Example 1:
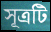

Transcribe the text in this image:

সূত্রটি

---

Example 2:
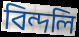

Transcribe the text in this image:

বিন্দলি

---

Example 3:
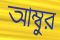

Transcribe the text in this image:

আম্বুর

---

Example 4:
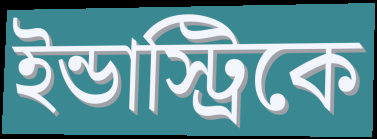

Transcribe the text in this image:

ইন্ডাস্ট্রিকে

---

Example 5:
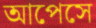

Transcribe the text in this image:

আপেসে